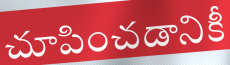
చూపించడానికీ